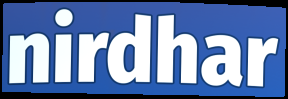
nirdhar